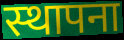
स्‍थापना